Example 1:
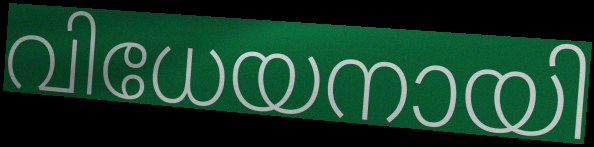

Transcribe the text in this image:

വിധേയനായി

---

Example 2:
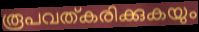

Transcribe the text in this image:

രൂപവത്കരിക്കുകയും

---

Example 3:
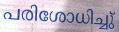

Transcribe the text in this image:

പരിശോധിച്ചു്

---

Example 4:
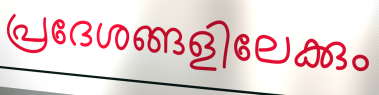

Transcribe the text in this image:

പ്രദേശങ്ങളിലേക്കും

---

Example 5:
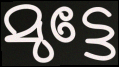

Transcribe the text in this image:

മുട്ടേ